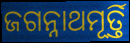
ଜଗନ୍ନାଥମୂର୍ତ୍ତି